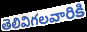
తెలివిగలవారికి